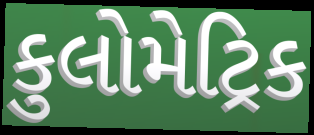
કુલોમેટ્રિક